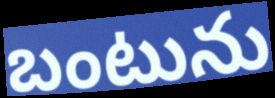
బంటును